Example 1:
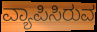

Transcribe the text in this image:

ವ್ಯಾಪಿಸಿರುವ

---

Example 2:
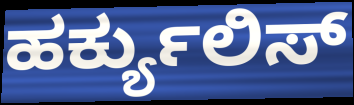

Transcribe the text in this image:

ಹರ್ಕ್ಯುಲಿಸ್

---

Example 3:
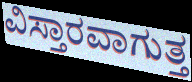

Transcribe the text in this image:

ವಿಸ್ತಾರವಾಗುತ್ತ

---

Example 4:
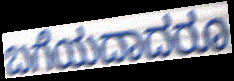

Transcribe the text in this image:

ಬಗೆಯದಾದರೂ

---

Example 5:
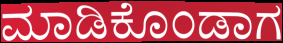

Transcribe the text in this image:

ಮಾಡಿಕೊಂಡಾಗ